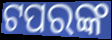
ଟପରଙ୍କ